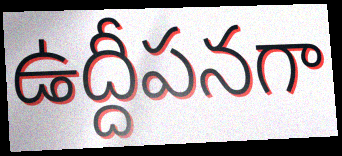
ఉద్దీపనగా